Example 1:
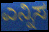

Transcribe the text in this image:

ಎನ್ನಿಸ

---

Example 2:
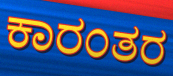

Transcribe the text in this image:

ಕಾರಂತರ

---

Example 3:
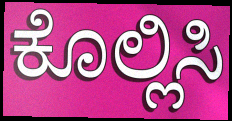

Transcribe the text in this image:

ಕೊಲ್ಲಿಸಿ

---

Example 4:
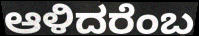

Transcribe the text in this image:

ಆಳಿದರೆಂಬ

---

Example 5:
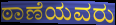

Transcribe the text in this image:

ಠಾಣೆಯವರು